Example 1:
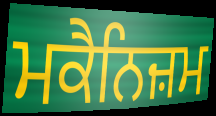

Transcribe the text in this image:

ਮਕੈਨਿਜ਼ਮ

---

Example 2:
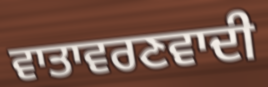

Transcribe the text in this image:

ਵਾਤਾਵਰਣਵਾਦੀ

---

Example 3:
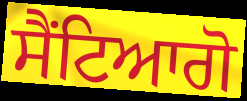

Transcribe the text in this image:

ਸੈਂਟਿਆਗੋ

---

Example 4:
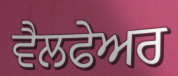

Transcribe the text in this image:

ਵੈਲਫੇਅਰ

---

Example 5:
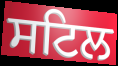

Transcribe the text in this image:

ਸਟਿਲ